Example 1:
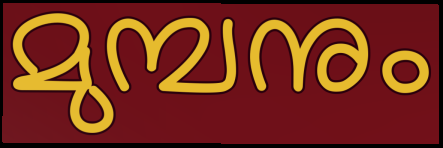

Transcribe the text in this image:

മുമ്പനും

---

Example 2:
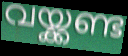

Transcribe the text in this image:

വയ്ക്കണ്ട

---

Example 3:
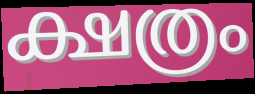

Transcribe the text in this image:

ക്ഷത്രം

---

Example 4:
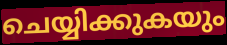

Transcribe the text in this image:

ചെയ്യിക്കുകയും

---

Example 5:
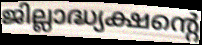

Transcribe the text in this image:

ജില്ലാദ്ധ്യക്ഷന്റെ